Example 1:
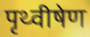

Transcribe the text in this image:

पृथ्वीषेण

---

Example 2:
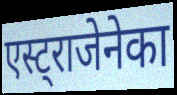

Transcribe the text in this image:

एस्ट्राजेनेका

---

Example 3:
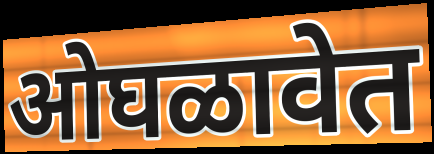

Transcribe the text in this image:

ओघळावेत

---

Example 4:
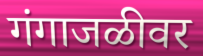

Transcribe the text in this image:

गंगाजळीवर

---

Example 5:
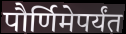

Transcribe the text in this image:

पौर्णिमेपर्यंत